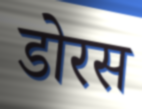
डोरस